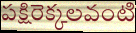
పక్షిరెక్కలవంటి